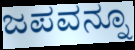
ಜಪವನ್ನೂ